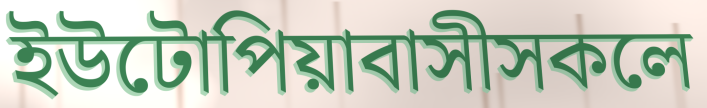
ইউটোপিয়াবাসীসকলে